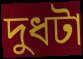
দুধটা